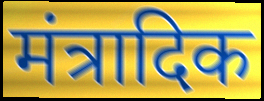
मंत्रादिक